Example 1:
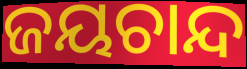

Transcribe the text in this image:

ଜୟଚାନ୍ଦ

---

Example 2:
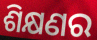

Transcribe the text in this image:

ଶିକ୍ଷଣର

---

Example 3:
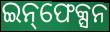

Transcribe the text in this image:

ଇନ୍‌ଫେକ୍ସନ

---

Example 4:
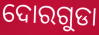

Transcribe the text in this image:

ଦୋରଗୁଡା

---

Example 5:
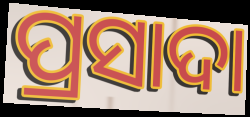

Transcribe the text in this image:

ପ୍ରସାଦା